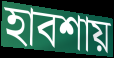
হাবশায়